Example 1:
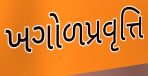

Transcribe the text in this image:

ખગોળપ્રવૃત્તિ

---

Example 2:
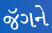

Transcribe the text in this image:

જૅગને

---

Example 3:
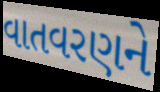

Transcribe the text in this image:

વાતવરણને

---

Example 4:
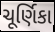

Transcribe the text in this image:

ચૂર્ણિકા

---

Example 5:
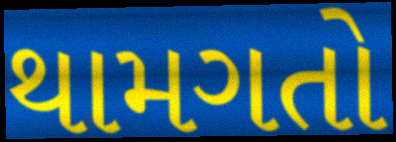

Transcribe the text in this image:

થામગતો